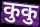
कुकु